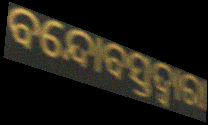
ବନ୍ଦୋବସ୍ତଦ୍ୱାରା